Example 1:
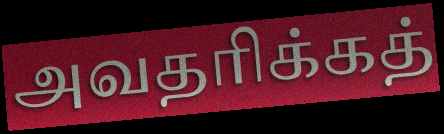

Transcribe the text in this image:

அவதரிக்கத்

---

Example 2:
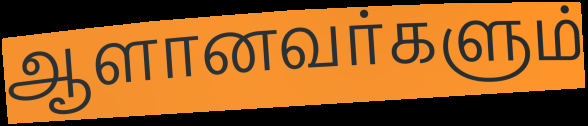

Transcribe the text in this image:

ஆளானவர்களும்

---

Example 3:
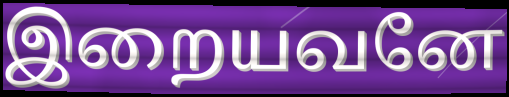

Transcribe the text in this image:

இறையவனே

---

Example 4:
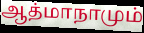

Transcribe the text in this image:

ஆத்மாநாமும்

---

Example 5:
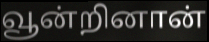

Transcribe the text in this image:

வூன்றினான்